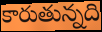
కారుతున్నది